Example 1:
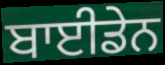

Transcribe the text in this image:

ਬਾਈਡੇਨ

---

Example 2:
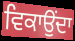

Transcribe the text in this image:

ਵਿਕਾਉੰਦਾ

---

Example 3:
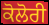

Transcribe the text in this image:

ਕੋਲੋਰੀ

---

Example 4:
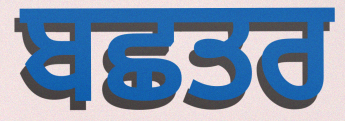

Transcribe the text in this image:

ਬਛਤਰ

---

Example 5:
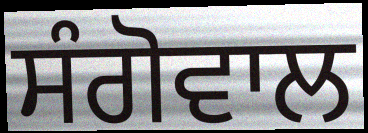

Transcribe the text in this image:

ਸੰਗੋਵਾਲ